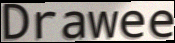
Drawee